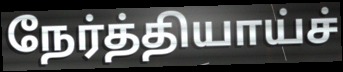
நேர்த்தியாய்ச்